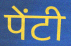
पेंटी